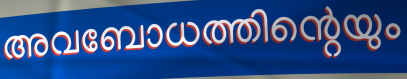
അവബോധത്തിന്റെയും